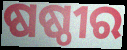
ଷଷ୍ଠୀର